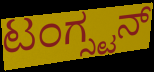
ಟಂಗ್ಸ್ಟನ್